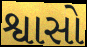
શ્વાસો